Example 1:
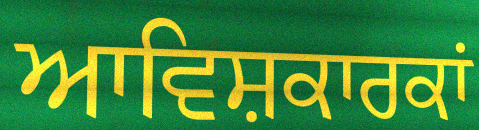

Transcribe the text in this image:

ਆਵਿਸ਼ਕਾਰਕਾਂ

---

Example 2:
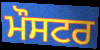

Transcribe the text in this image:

ਮੌਸਟਰ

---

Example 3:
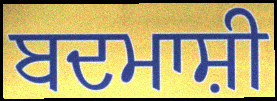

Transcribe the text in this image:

ਬਦਮਾਸ਼ੀ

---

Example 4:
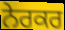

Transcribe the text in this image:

ਨੇਰਕਰ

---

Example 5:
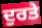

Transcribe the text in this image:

ਦੁਰਤੇ